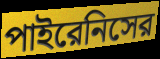
পাইরেনিসের